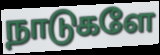
நாடுகளே